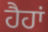
ਹੈਹਾਂ